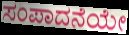
ಸಂಪಾದನೆಯೇ